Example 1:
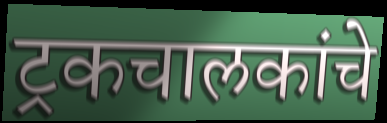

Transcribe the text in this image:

ट्रकचालकांचे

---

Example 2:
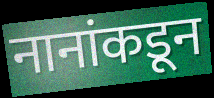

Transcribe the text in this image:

नानांकडून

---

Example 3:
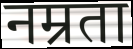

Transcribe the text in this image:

नम्रता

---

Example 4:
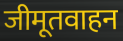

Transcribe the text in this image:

जीमूतवाहन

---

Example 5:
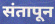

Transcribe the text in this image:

संतापून